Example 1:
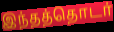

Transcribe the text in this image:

இந்தத்தொடர்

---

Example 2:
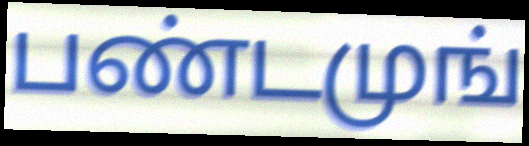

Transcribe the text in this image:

பண்டமுங்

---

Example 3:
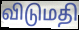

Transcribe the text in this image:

விடுமதி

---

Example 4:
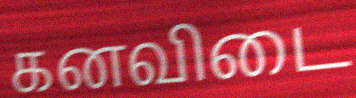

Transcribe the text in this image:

கனவிடை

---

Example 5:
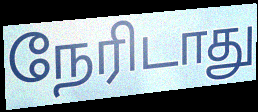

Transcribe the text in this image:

நேரிடாது